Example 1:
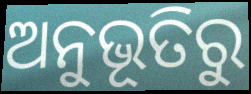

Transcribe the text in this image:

ଅନୁଭୂତିରୁ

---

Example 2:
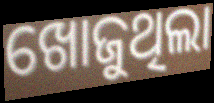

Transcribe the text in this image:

ଖୋଜୁଥିଲା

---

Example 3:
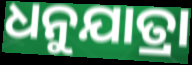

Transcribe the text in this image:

ଧନୁଯାତ୍ରା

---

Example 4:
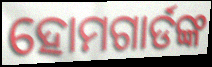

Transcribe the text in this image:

ହୋମଗାର୍ଡଙ୍କ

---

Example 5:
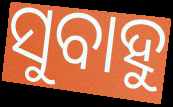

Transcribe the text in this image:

ସୁବାହୁ